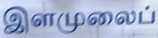
இளமுலைப்